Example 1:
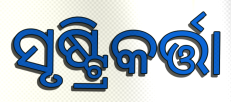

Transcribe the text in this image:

ସୃଷ୍ଟ୍ରିକର୍ତ୍ତା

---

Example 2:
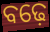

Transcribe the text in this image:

ବଢ଼େ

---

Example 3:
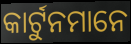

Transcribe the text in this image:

କାର୍ଟୁନମାନେ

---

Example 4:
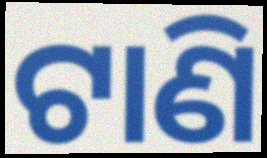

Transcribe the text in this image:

ଟାଣି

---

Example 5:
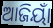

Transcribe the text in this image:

ଆଜିୟାଁ